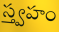
స్త్వహం